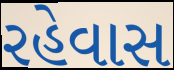
રહેવાસ